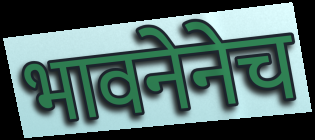
भावनेनेच